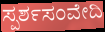
ಸ್ಪರ್ಶಸಂವೇದಿ